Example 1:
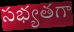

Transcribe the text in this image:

సభ్యతగా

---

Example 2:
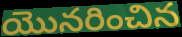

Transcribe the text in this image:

యొనరించిన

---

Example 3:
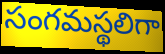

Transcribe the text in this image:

సంగమస్థలిగా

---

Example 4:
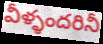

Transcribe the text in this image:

వీళ్ళందరినీ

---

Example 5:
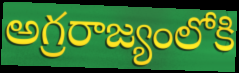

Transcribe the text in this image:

అగ్రరాజ్యంలోకి